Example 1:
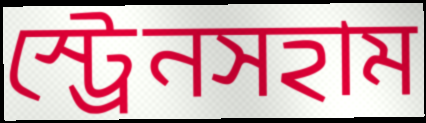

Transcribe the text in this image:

স্ট্রেনসহাম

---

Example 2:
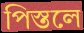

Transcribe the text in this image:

পিস্তলে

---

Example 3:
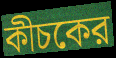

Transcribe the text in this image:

কীচকের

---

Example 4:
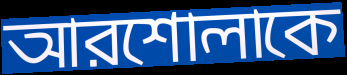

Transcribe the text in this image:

আরশোলাকে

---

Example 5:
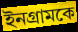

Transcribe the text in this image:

ইনগ্রামকে